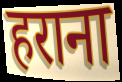
हराना